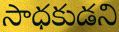
సాధకుడని